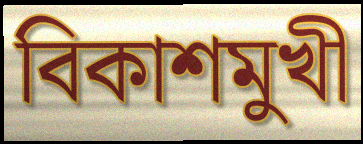
বিকাশমুখী